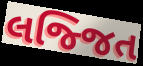
લજ્જિત